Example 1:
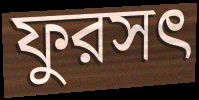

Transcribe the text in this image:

ফুরসৎ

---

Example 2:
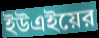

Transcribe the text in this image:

ইউএইয়ের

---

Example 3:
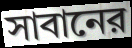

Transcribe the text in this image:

সাবানের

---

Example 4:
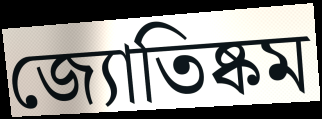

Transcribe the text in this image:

জ্যোতিষ্কম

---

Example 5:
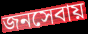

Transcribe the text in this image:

জনসেবায়